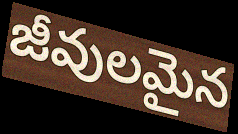
జీవులమైన